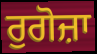
ਰੁਗੋਜ਼ਾ